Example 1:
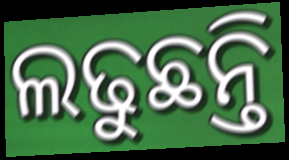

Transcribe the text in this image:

ଲଢୁଛନ୍ତି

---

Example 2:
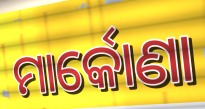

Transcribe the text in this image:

ମାର୍କୋଣା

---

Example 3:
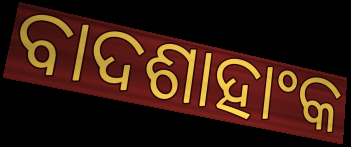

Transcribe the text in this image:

ବାଦଶାହାଂକ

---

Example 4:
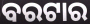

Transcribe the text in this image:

ବରଟାର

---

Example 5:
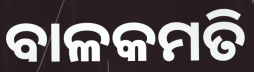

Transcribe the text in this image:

ବାଳକମତି